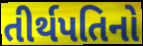
તીર્થપતિનો